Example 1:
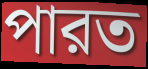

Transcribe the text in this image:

পারত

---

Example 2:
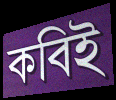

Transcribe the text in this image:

কবিই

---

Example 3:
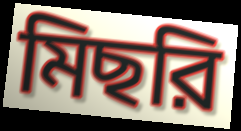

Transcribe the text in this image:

মিছরি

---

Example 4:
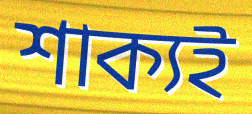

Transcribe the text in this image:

শাক্যই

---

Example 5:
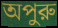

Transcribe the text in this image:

অপুরু